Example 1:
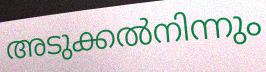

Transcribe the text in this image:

അടുക്കൽനിന്നും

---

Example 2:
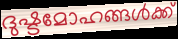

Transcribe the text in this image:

ദുഷ്ടമോഹങ്ങൾക്ക്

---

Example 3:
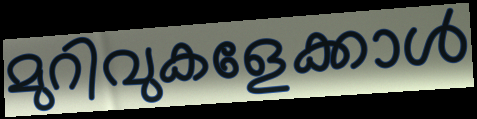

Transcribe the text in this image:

മുറിവുകളേക്കാൾ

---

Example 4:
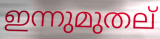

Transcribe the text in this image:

ഇന്നുമുതല്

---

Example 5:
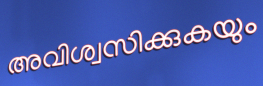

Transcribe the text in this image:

അവിശ്വസിക്കുകയും